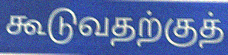
கூடுவதற்குத்